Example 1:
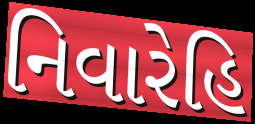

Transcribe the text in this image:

નિવારેહિ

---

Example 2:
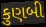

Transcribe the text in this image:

કુણબી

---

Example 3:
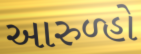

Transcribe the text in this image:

આરુળ્હો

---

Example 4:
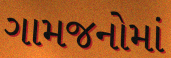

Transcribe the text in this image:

ગામજનોમાં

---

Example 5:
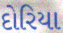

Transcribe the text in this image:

દોરિયા